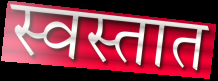
स्वस्तात